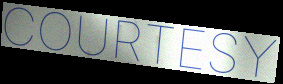
COURTESY